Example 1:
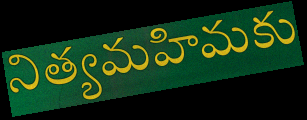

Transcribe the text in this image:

నిత్యమహిమకు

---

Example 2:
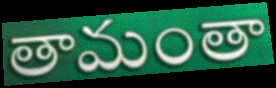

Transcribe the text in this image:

తామంతా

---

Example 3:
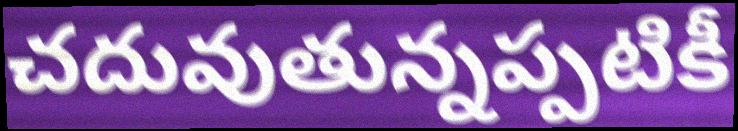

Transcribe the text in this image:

చదువుతున్నప్పటికీ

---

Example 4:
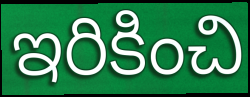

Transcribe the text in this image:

ఇరికించి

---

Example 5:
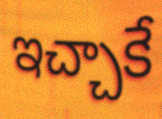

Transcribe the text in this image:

ఇచ్చాకే